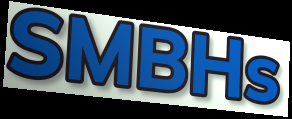
SMBHs